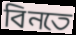
বিনতে